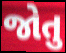
જોતુ